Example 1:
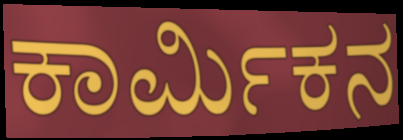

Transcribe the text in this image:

ಕಾರ್ಮಿಕನ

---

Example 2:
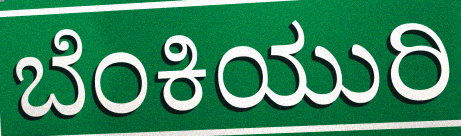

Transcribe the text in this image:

ಬೆಂಕಿಯುರಿ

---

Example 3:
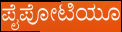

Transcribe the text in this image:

ಪೈಪೋಟಿಯೂ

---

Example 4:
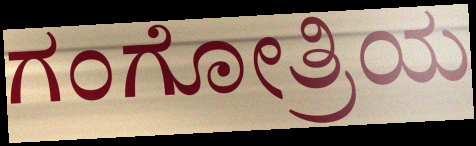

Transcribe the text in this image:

ಗಂಗೋತ್ರಿಯ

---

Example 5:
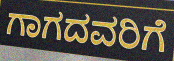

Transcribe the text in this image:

ಗಾಗದವರಿಗೆ